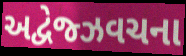
અદ્વેજ્ઝવચના